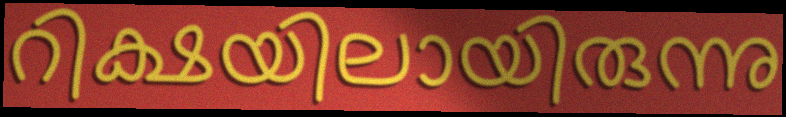
റിക്ഷയിലായിരുന്നു